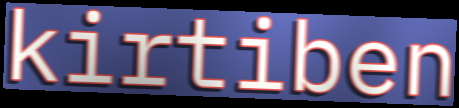
kirtiben